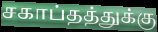
சகாப்தத்துக்கு